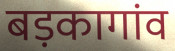
बड़कागांव